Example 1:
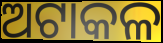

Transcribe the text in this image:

ଅଟାକଳ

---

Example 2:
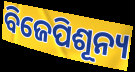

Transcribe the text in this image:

ବିଜେପିଶୂନ୍ୟ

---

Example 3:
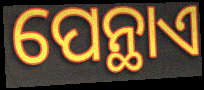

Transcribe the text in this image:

ପେନ୍ଥାଏ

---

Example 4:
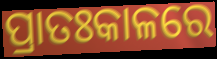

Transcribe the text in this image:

ପ୍ରାତଃକାଳରେ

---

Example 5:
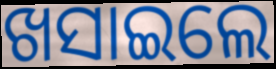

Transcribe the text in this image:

ଖସାଇଲେ